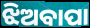
ଝିଅବାପା